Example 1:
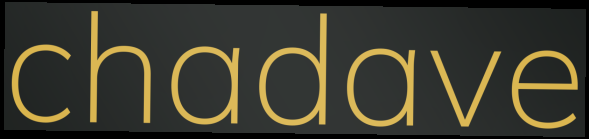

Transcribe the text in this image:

chadave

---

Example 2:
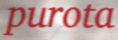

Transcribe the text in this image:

purota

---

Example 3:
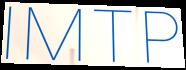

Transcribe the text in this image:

IMTP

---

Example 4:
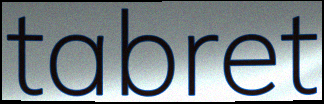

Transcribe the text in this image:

tabret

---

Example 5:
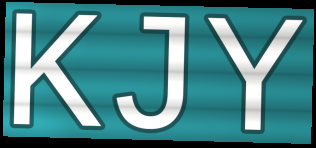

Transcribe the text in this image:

KJY